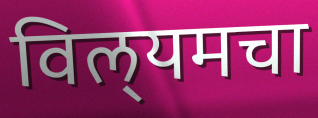
विल्यमचा